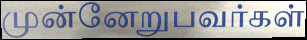
முன்னேறுபவர்கள்